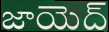
జాయెద్